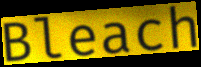
Bleach